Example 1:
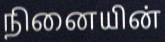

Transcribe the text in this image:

நினையின்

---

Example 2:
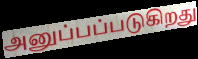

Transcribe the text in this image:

அனுப்பப்படுகிறது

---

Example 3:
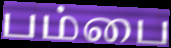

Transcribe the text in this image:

பம்பை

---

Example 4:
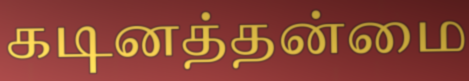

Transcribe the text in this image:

கடினத்தன்மை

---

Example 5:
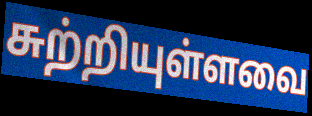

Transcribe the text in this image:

சுற்றியுள்ளவை